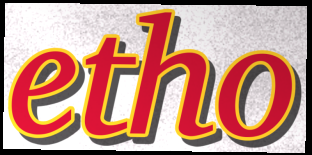
etho